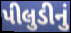
પીલુડીનું